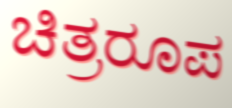
ಚಿತ್ರರೂಪ